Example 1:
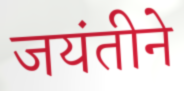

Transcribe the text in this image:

जयंतीने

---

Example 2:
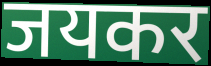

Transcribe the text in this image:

जयकर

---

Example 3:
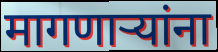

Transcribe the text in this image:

मागणार्‍यांना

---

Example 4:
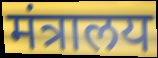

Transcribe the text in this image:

मंत्रालय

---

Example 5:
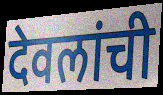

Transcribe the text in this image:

देवलांची